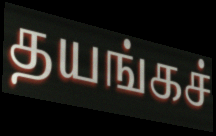
தயங்கச்